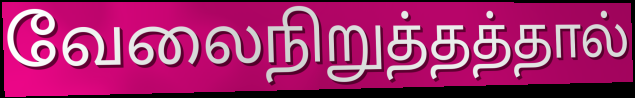
வேலைநிறுத்தத்தால்